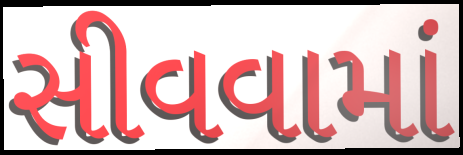
સીવવામાં